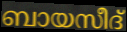
ബായസീദ്